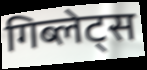
गिब्लेट्स